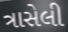
ત્રાસેલી